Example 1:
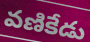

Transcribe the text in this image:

వణికేడు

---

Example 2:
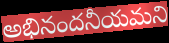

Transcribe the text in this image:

అభినందనీయమని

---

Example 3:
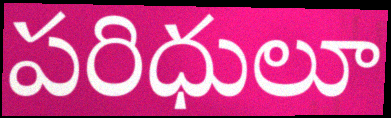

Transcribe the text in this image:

పరిధులూ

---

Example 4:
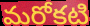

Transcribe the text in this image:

మరోకటి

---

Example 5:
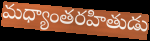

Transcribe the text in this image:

మధ్యాంతరహితుడు